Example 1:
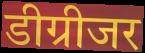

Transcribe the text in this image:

डीग्रीजर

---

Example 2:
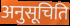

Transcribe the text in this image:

अनुसूचिति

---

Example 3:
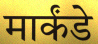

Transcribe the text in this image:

मार्कंडे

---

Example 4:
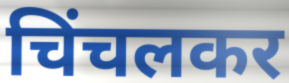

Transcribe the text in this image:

चिंचलकर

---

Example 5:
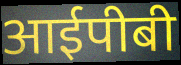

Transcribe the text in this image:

आईपीबी